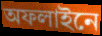
অফলাইনে